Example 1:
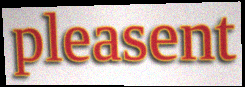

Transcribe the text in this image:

pleasent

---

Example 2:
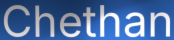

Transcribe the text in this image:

Chethan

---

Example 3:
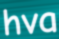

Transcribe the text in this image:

hva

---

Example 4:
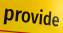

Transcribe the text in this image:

provide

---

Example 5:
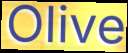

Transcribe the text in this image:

Olive